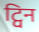
ट्विन